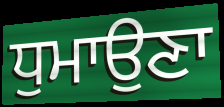
ਧੁਮਾਉਣਾ